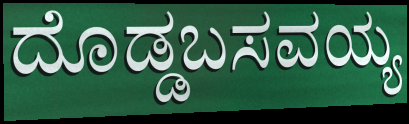
ದೊಡ್ಡಬಸವಯ್ಯ